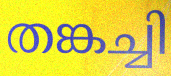
തങ്കച്ചി